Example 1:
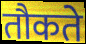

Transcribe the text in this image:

तौकते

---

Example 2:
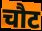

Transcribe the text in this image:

चौट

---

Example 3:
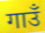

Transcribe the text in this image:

गाउँ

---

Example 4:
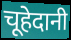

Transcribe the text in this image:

चूहेदानी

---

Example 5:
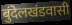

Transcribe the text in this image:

बुंदेलखंडवासी